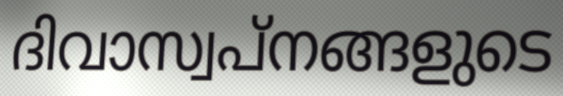
ദിവാസ്വപ്നങ്ങളുടെ